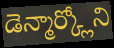
డెన్మార్క్లోని